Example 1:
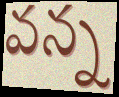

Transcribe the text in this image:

వన్న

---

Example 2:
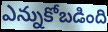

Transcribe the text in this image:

ఎన్నుకోబడింది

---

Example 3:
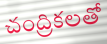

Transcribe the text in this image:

చంద్రికలతో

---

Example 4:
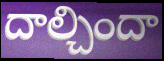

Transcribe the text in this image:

దాల్చిందా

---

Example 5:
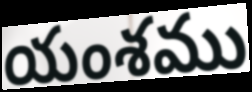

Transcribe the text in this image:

యంశము